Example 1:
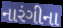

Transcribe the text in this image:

નારંગીના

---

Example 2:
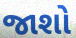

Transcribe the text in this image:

જાશો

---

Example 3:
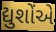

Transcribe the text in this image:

દ્યુશોંએ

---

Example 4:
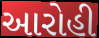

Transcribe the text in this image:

આરોહી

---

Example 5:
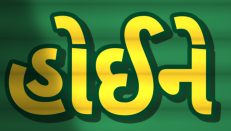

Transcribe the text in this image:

હોઈને